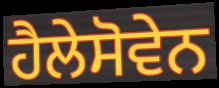
ਹੈਲੇਸੋਵੇਨ